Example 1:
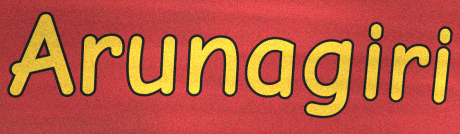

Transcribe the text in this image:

Arunagiri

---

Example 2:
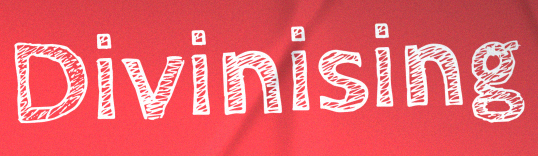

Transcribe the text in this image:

Divinising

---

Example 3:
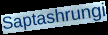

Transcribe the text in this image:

Saptashrungi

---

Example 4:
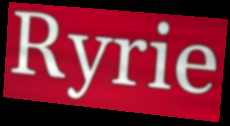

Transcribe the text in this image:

Ryrie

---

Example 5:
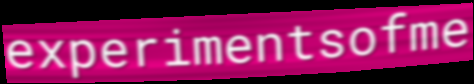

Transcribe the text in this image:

experimentsofme